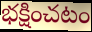
భక్షించటం